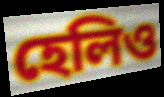
হেলিও